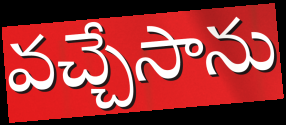
వచ్చేసాను